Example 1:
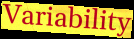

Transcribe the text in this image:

Variability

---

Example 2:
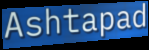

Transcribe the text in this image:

Ashtapad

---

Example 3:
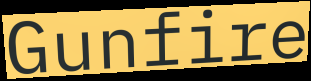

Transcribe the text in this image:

Gunfire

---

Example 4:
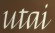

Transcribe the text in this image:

utai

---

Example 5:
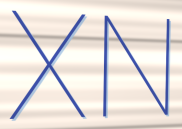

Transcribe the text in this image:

XN